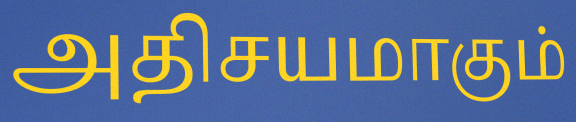
அதிசயமாகும்